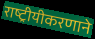
राष्ट्रीयीकरणाने